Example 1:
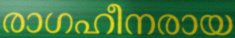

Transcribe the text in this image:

രാഗഹീനരായ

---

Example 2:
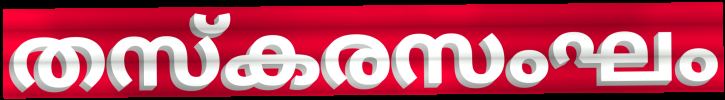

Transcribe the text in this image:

തസ്കരസംഘം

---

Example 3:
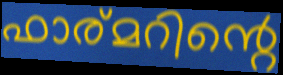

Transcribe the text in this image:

ഫാര്മറിന്റെ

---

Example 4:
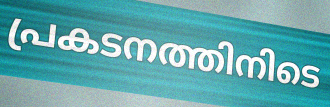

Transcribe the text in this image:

പ്രകടനത്തിനിടെ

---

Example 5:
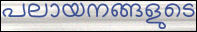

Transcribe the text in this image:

പലായനങ്ങളുടെ